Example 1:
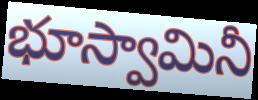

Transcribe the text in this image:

భూస్వామినీ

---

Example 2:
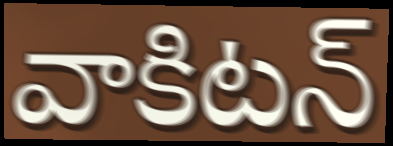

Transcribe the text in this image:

వాకిటన్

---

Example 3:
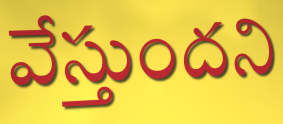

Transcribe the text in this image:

వేస్తుందని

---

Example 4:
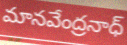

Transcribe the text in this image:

మానవేంద్రనాధ్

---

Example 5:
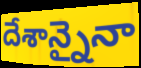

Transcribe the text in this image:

దేశాన్నైనా